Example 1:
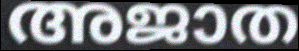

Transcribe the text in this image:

അജാത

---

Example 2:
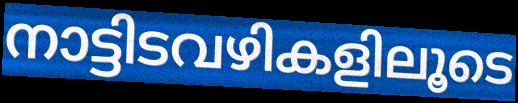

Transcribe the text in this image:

നാട്ടിടവഴികളിലൂടെ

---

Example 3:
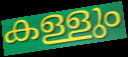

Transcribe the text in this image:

കള്ളും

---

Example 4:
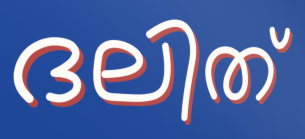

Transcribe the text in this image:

ദലിത്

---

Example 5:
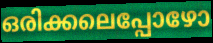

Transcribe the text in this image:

ഒരിക്കലെപ്പോഴോ